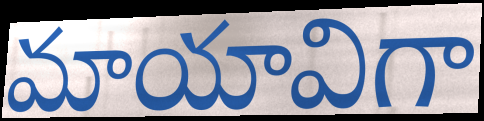
మాయావిగా